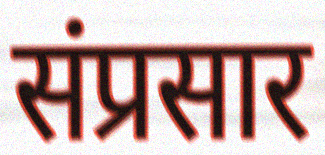
संप्रसार